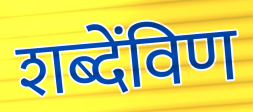
शब्देंविण